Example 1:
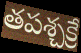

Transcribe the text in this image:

తపశ్చక్రే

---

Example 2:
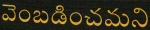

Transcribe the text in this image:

వెంబడించమని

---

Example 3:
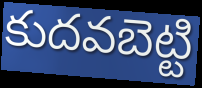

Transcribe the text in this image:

కుదవబెట్టి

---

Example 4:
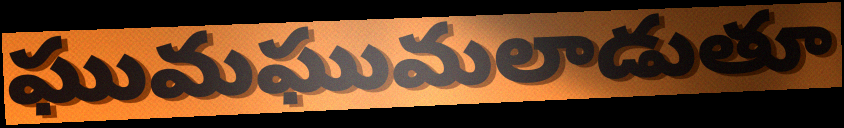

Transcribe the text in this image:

ఘుమఘుమలాడుతూ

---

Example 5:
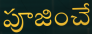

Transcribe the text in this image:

పూజించే